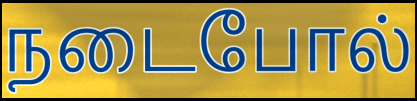
நடைபோல்